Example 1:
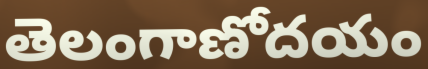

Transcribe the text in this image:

తెలంగాణోదయం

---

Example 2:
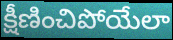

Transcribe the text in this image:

క్షీణించిపోయేలా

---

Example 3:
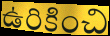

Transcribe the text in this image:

ఉరికించి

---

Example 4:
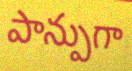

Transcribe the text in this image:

పాన్పుగా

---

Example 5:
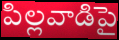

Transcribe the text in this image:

పిల్లవాడిపై